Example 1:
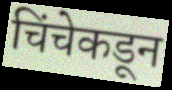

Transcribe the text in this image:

चिंचेकडून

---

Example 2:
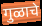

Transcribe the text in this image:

गुळाचे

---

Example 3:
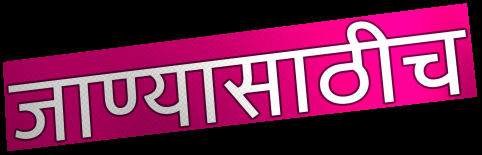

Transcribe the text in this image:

जाण्यासाठीच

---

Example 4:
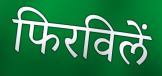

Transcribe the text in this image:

फिरविलें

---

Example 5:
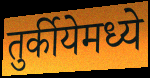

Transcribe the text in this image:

तुर्कीयेमध्ये